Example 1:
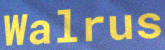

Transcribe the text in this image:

Walrus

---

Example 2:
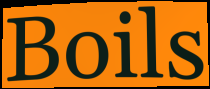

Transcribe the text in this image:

Boils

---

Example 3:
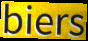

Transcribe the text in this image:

biers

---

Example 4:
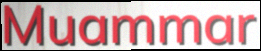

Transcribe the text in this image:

Muammar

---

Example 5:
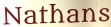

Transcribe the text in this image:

Nathans